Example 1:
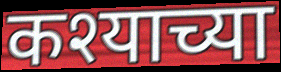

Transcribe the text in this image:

कश्याच्या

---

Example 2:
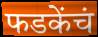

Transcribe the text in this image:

फडकेंचं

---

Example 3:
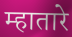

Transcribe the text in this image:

म्हातारे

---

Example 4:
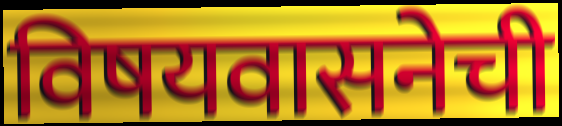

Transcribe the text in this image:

विषयवासनेची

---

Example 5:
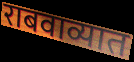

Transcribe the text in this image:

राबवाव्यात